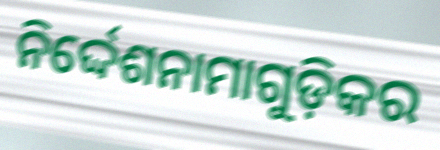
ନିର୍ଦ୍ଦେଶନାମାଗୁଡ଼ିକର